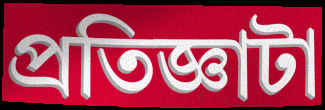
প্রতিজ্ঞাটা